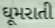
ઘૂમરાતી